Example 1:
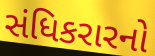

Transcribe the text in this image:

સંધિકરારનો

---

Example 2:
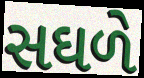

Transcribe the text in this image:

સઘળે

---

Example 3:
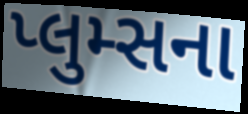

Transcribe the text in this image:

પ્લુમ્સના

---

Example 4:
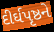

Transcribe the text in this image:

દીર્ઘપૃષ્ઠને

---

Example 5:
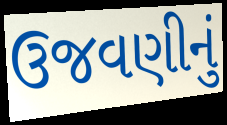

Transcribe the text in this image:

ઉજવણીનું